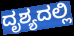
ದೃಶ್ಯದಲ್ಲಿ